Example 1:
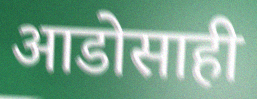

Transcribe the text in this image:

आडोसाही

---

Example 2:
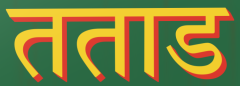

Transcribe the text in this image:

तताड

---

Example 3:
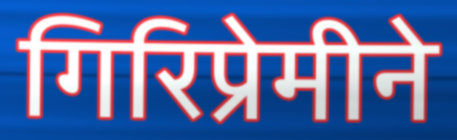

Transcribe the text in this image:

गिरिप्रेमीने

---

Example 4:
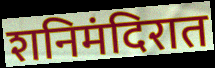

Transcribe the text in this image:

शनिमंदिरात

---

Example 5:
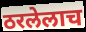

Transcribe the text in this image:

ठरलेलाच